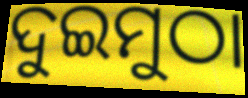
ଦୁଇମୁଠା